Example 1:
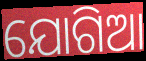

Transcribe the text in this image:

ଯୋଗିଆ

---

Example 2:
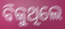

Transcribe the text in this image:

ବିକୁଥିଲେ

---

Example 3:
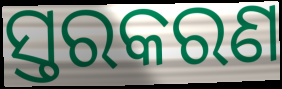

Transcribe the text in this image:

ସ୍ତରକରଣ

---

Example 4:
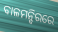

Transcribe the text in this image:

ବାଳମନ୍ଦିରରେ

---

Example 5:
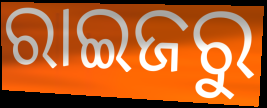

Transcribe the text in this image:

ରାଇଜରୁ